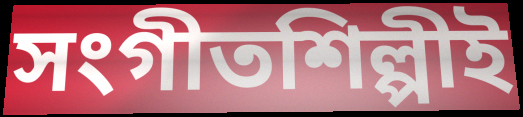
সংগীতশিল্পীই